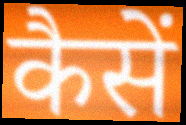
कैसें